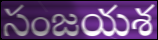
సంజయశ